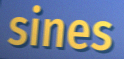
sines